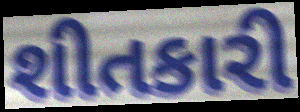
શીતકારી